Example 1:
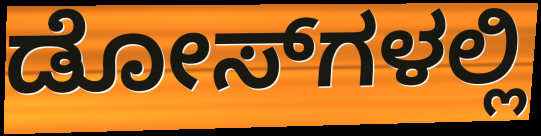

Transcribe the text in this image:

ಡೋಸ್‌ಗಳಲ್ಲಿ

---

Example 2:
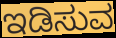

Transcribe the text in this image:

ಇಡಿಸುವ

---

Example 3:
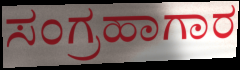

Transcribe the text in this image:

ಸಂಗ್ರಹಾಗಾರ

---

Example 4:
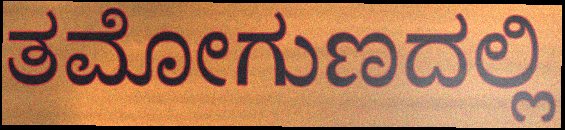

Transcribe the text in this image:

ತಮೋಗುಣದಲ್ಲಿ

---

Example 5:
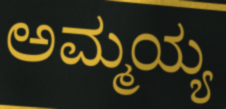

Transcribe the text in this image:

ಅಮ್ಮಯ್ಯ